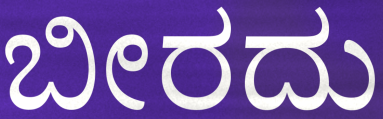
ಬೀರದು